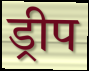
ड्रीप